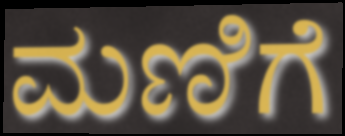
ಮಣಿಗೆ